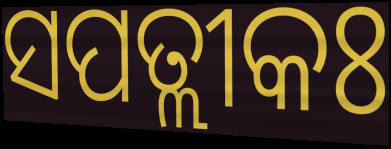
ସପତ୍ଲୀକଃ